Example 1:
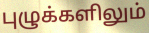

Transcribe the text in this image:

புழுக்களிலும்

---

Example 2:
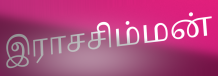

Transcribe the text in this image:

இராசசிம்மன்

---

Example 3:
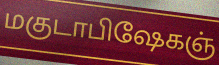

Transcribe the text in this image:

மகுடாபிஷேகஞ்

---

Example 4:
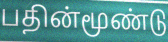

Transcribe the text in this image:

பதின்மூண்டு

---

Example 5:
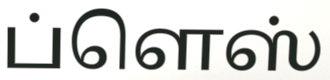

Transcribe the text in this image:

ப்ளெஸ்